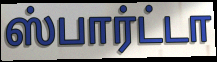
ஸ்பார்ட்டா